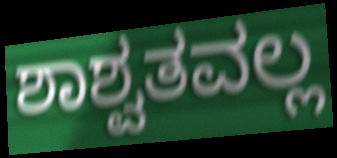
ಶಾಶ್ವತವಲ್ಲ